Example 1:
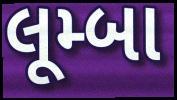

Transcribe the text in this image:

લૂમ્બા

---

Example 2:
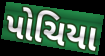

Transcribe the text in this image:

પોચિયા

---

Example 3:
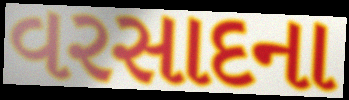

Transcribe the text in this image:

વરસાદના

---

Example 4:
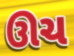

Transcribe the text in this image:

ઊચ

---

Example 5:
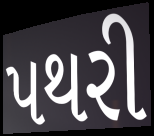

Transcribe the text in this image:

પથરી